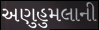
અણુહુમલાની